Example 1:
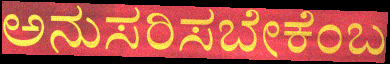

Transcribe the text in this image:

ಅನುಸರಿಸಬೇಕೆಂಬ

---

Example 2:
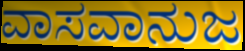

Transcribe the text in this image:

ವಾಸವಾನುಜ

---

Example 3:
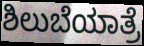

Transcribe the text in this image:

ಶಿಲುಬೆಯಾತ್ರೆ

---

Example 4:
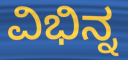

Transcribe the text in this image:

ವಿಭಿನ್ನ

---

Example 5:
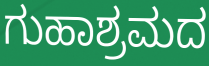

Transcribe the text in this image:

ಗುಹಾಶ್ರಮದ